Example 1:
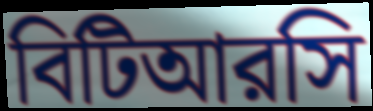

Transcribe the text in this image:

বিটিআরসি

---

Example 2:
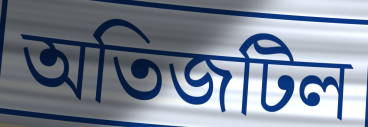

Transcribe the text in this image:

অতিজটিল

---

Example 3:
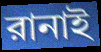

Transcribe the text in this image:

রানাই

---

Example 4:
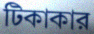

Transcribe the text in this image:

টিকাকার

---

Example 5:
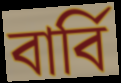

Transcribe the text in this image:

বার্বি